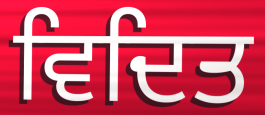
ਵਿਦਿਤ